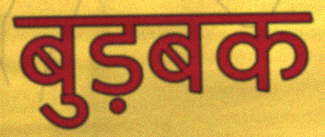
बुड़बक